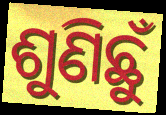
ଶୁଣିଛୁଁ